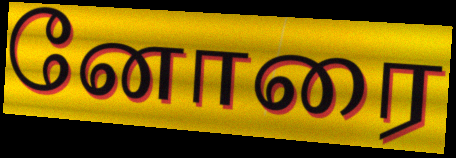
னோரை